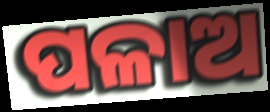
ପଳାଅ